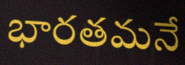
భారతమనే